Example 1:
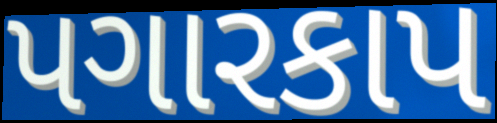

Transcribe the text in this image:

પગારકાપ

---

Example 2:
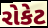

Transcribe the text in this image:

રોકેટ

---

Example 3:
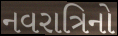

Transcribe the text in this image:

નવરાત્રિનો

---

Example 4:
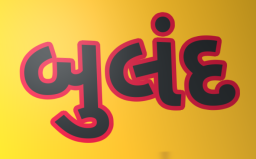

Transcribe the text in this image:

બુલંદ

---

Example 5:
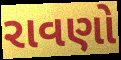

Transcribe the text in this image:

રાવણો